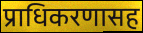
प्राधिकरणासह